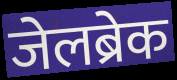
जेलब्रेक